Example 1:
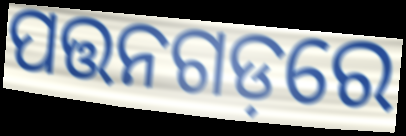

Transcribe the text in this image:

ପତ୍ତନଗଡ଼ରେ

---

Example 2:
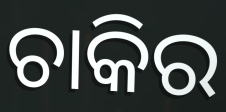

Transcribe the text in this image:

ଚାକିର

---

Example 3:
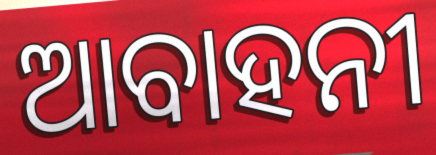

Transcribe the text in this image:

ଆବାହନୀ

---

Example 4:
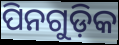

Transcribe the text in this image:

ପିନଗୁଡ଼ିକ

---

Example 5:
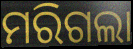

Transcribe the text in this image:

ମରିଗଲା